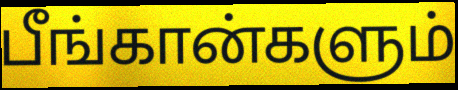
பீங்கான்களும்